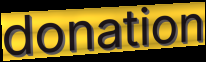
donation